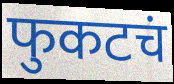
फुकटचं